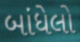
બાંધેલો